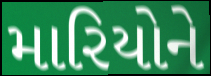
મારિયોને